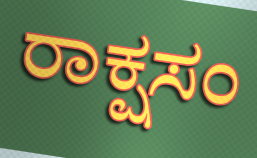
ರಾಕ್ಷಸಂ